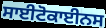
ਸਾਈਟੋਕਾਈਨਸ